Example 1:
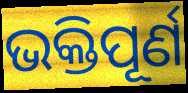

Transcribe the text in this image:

ଭକ୍ତିପୂର୍ଣ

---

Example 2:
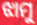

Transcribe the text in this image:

ଝାମୁ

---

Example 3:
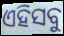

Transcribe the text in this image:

ଏହିସବୁ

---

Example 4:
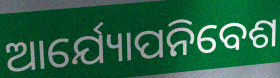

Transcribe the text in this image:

ଆର୍ଯ୍ୟୋପନିବେଶ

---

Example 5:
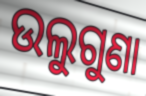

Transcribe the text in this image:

ଉଲୁଗୁଣା